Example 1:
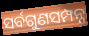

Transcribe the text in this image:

ସର୍ବଗୁଣସମ୍ପନ୍ନ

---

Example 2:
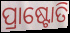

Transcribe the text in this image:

ପ୍ରାଷ୍ଟୋତି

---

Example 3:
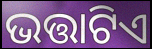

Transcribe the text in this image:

ଭତ୍ତାଟିଏ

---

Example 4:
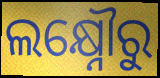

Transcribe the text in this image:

ଲକ୍ଷ୍ନୌରୁ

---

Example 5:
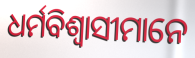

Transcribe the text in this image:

ଧର୍ମବିଶ୍ଵାସୀମାନେ